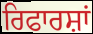
ਰਿਫਾਰਸ਼ਾਂ